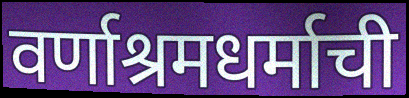
वर्णाश्रमधर्माची